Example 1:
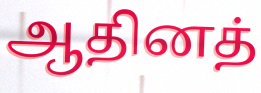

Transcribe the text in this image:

ஆதினத்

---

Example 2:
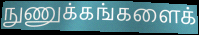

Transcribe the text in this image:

நுணுக்கங்களைக்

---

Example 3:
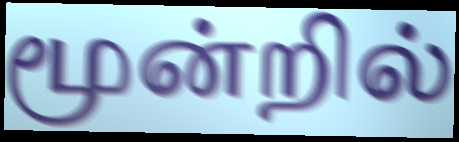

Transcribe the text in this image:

மூன்றில்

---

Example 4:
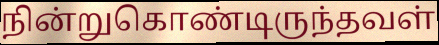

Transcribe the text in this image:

நின்றுகொண்டிருந்தவள்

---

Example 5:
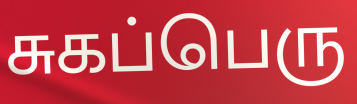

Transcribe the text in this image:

சுகப்பெரு